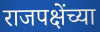
राजपक्षेंच्या